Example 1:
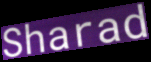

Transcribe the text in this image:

Sharad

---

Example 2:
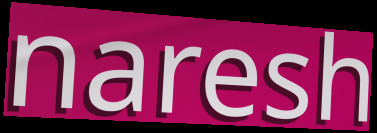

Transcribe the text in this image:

naresh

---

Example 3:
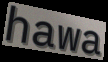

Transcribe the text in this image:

hawa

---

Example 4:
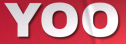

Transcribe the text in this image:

YOO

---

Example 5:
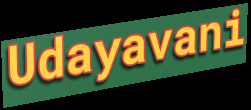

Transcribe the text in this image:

Udayavani